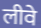
लीवे